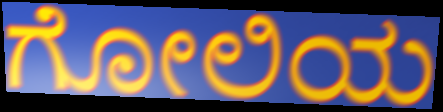
ಗೋಲಿಯ